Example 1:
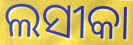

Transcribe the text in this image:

ଲସୀକା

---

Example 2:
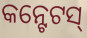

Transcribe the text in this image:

କନ୍ଟେଟସ୍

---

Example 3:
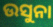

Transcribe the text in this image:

ଉସୁନା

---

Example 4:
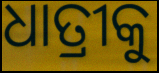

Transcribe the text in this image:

ଧାତ୍ରୀକୁ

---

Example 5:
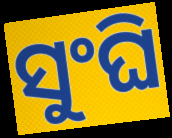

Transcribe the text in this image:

ସୁଂଘି